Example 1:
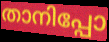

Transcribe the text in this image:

താനിപ്പോ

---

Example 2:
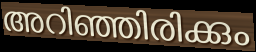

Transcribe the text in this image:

അറിഞ്ഞിരിക്കും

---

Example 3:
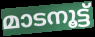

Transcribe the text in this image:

മാടനൂട്ട്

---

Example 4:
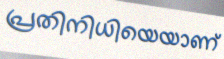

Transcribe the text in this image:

പ്രതിനിധിയെയാണ്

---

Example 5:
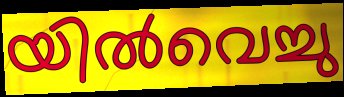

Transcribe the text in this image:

യിൽവെച്ചു